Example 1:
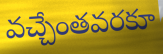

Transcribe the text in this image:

వచ్చేంతవరకూ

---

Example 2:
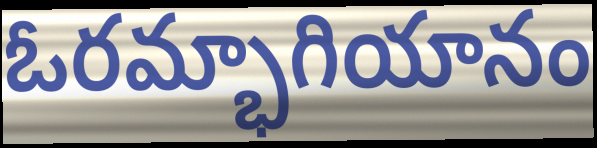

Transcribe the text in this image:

ఓరమ్భాగియానం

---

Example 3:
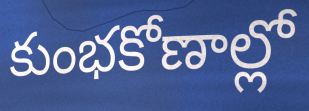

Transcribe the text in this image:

కుంభకోణాల్లో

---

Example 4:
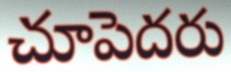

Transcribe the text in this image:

చూపెదరు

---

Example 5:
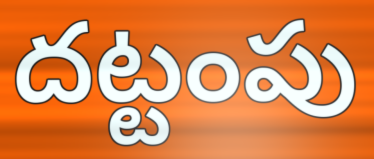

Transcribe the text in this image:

దట్టంపు